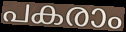
പകരാം